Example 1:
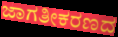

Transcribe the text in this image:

ಜಾಗತೀಕರಣದ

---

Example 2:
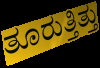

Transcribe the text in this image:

ತೂರುತ್ತಿತ್ತು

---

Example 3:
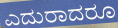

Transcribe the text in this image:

ಎದುರಾದರೂ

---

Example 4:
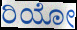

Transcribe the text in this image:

ರಿಯೋ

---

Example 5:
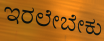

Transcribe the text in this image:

ಇರಲೇಬೇಕು